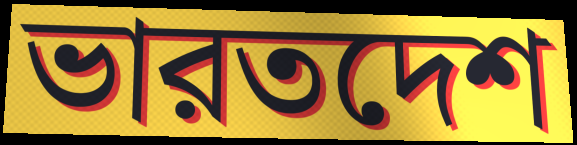
ভারতদেশ